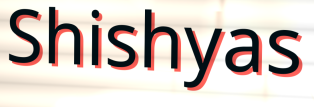
Shishyas